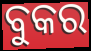
ବୁକର